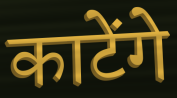
काटेंगे